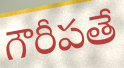
గౌరీపతే